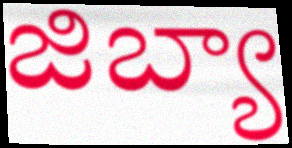
జిబ్యా